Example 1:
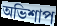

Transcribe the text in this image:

অভিশাপ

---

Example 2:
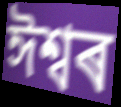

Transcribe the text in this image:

ঈশ্বৰ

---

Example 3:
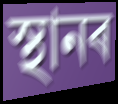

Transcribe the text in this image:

স্থানৰ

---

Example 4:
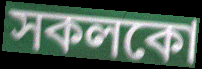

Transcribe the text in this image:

সকলকো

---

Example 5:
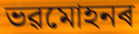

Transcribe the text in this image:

ভৱমোহনৰ